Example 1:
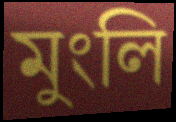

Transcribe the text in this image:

মুংলি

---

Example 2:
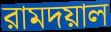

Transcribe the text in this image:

রামদয়াল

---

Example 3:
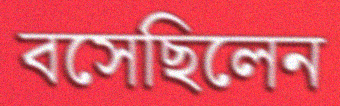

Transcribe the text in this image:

বসেছিলেন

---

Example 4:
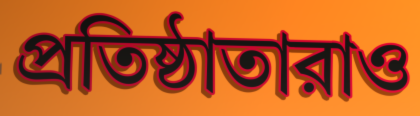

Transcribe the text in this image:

প্রতিষ্ঠাতারাও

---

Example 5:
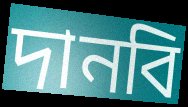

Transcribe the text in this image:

দানবি